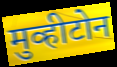
मुव्हीटोन